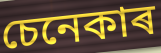
চেনেকাৰ